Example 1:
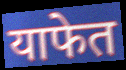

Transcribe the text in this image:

याफेत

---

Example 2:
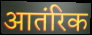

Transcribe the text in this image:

आतंरिक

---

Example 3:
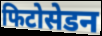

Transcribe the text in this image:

फिटोसेडन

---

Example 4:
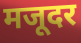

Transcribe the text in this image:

मजूदर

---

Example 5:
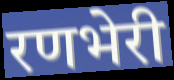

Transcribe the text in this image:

रणभेरी